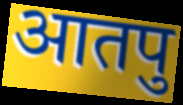
आतपु